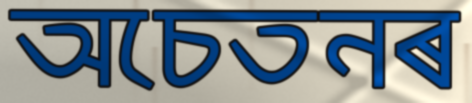
অচেতনৰ